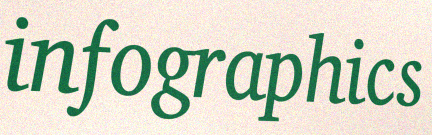
infographics